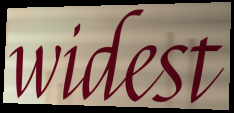
widest